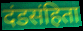
दंडसंहिता